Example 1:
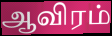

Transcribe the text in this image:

ஆவிரம்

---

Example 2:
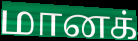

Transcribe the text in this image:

மானக்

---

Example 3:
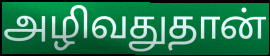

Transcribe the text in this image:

அழிவதுதான்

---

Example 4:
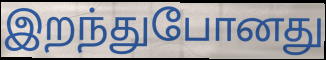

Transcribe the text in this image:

இறந்துபோனது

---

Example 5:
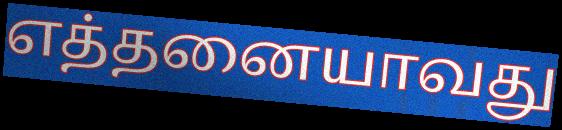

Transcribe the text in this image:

எத்தனையாவது